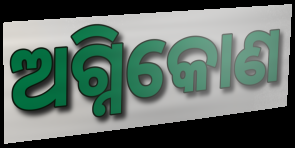
ଅଗ୍ନିକୋଣ